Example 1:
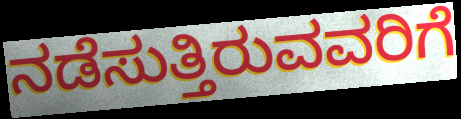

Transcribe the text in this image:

ನಡೆಸುತ್ತಿರುವವರಿಗೆ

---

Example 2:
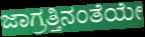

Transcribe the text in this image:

ಜಾಗ್ರತ್ತಿನಂತೆಯೇ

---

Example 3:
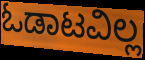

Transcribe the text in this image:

ಓಡಾಟವಿಲ್ಲ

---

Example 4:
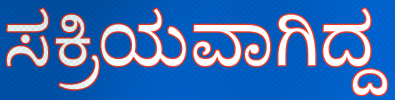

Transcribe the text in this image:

ಸಕ್ರಿಯವಾಗಿದ್ದ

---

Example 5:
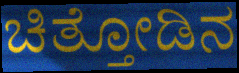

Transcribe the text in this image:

ಚಿತ್ತೋಡಿನ